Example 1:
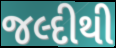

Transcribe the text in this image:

જલ્દીથી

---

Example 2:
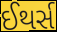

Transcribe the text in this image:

ઈથર્સ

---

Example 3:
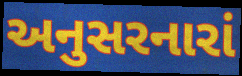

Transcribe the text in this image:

અનુસરનારાં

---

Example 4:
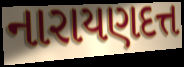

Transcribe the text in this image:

નારાયણદત્ત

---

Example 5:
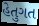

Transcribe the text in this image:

હેતુગત